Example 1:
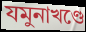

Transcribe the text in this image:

যমুনাখণ্ডে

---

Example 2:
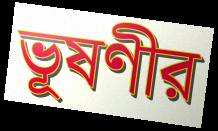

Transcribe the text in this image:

ভূষণীর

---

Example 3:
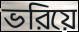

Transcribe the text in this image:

ভরিয়ে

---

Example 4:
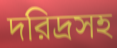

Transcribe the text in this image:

দরিদ্রসহ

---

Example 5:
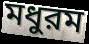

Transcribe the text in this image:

মধুরম